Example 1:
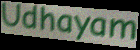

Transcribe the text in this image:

Udhayam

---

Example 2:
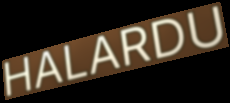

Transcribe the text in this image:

HALARDU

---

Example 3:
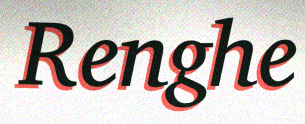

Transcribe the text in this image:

Renghe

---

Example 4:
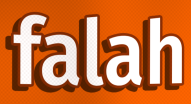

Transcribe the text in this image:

falah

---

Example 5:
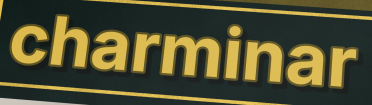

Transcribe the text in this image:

charminar